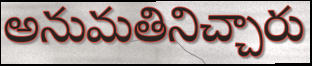
అనుమతినిచ్చారు